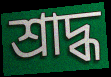
শ্রাদ্ধ